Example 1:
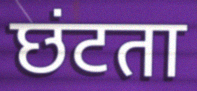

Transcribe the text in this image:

छंटता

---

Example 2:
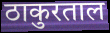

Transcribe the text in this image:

ठाकुरताल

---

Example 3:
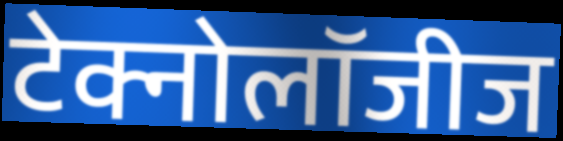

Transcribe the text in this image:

टेक्नोलॉजीज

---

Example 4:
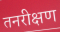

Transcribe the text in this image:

तनरीक्षण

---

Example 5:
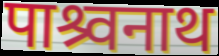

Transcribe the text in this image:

पाश्र्वनाथ